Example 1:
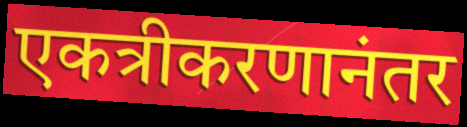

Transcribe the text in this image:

एकत्रीकरणानंतर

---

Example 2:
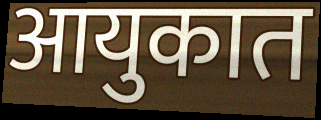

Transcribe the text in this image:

आयुकात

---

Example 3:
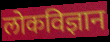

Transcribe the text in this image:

लोकविज्ञान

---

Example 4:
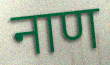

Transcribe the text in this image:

नाण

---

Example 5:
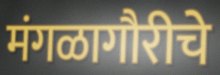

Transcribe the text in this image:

मंगळागौरीचे